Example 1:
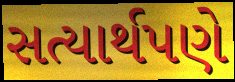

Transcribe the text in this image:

સત્યાર્થપણે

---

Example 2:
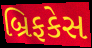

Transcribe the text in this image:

બ્રિફકેસ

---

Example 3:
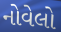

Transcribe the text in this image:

નોવેલો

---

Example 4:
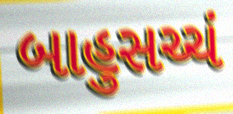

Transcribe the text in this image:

બાહુસચ્ચં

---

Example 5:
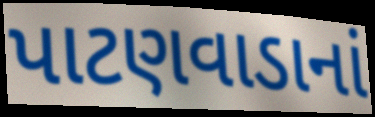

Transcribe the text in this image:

પાટણવાડાનાં